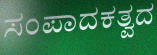
ಸಂಪಾದಕತ್ವದ